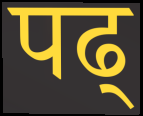
पढ्